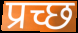
प्रच्छ